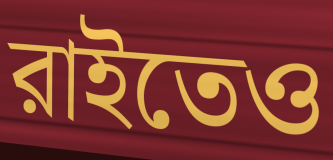
রাইতেও